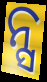
ନ୍ସ